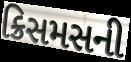
ક્રિસમસની